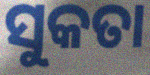
ସୁକତା